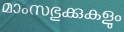
മാംസഭുക്കുകളും